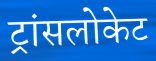
ट्रांसलोकेट